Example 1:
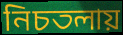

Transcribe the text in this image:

নিচতলায়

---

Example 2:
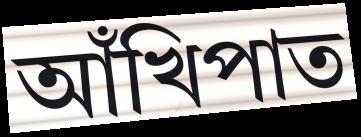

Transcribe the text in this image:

আঁখিপাত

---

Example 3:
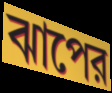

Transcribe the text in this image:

ঝাপের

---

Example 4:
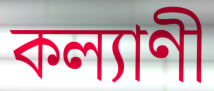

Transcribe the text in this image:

কল্যাণী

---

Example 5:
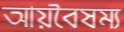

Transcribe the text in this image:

আয়বৈষম্য